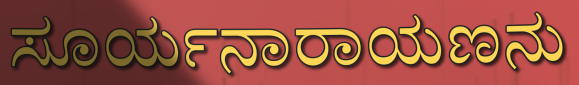
ಸೂರ್ಯನಾರಾಯಣನು